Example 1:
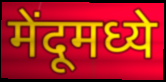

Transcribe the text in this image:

मेंदूमध्ये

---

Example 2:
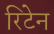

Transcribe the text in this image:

रिटेन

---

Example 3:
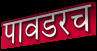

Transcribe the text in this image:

पावडरच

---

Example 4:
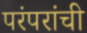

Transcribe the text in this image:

परंपरांची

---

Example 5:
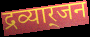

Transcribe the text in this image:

द्रव्यार्जन